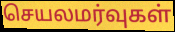
செயலமர்வுகள்